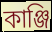
কাঞ্জি